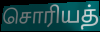
சொரியத்